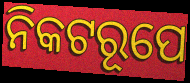
ନିକଟରୂପେ